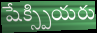
షేక్స్పియరు